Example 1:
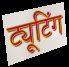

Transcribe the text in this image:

ट्यूटिंग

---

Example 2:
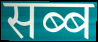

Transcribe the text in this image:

सब्ब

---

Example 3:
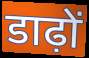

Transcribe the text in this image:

डाढ़ों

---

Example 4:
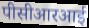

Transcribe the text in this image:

पीसीआरआई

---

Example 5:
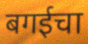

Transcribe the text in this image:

बगईचा